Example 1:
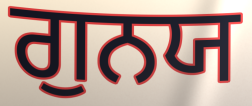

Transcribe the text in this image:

ਗੁਨਯ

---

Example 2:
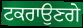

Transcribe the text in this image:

ਟਕਰਾਉਣਗੇ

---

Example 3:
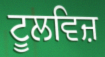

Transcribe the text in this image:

ਟੂਲਵਿਜ਼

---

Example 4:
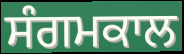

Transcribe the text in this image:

ਸੰਗਮਕਾਲ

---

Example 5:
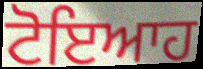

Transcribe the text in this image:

ਟੋਇਆਹ